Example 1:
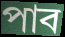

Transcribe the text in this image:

পাব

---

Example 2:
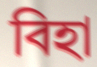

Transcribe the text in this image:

বিহা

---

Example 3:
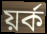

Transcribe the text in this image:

য়ৰ্ক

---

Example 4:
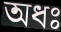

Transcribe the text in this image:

অধঃ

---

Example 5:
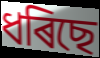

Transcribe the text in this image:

ধৰিছে